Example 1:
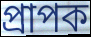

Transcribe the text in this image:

প্ৰাপক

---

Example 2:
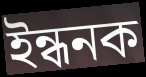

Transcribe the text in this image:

ইন্ধনক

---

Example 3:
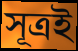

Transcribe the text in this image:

সূত্ৰই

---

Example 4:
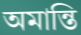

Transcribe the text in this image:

অমান্তি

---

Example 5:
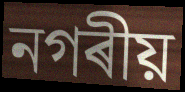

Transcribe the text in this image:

নগৰীয়